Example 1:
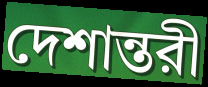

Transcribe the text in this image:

দেশান্তরী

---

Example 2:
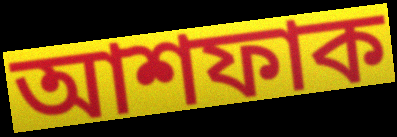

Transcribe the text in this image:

আশফাক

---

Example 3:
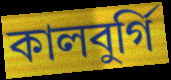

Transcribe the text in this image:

কালবুর্গি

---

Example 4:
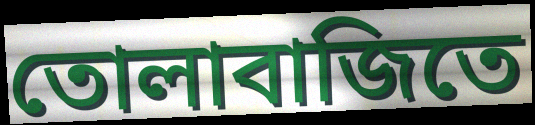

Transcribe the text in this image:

তোলাবাজিতে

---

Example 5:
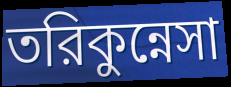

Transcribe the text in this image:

তরিকুন্নেসা